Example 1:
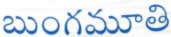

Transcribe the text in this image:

బుంగమూతి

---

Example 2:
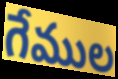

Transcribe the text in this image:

గేముల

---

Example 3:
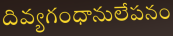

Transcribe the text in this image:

దివ్యగంధానులేపనం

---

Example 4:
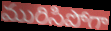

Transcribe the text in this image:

మురిసిపోగా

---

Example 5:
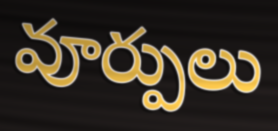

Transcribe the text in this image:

వూర్పులు